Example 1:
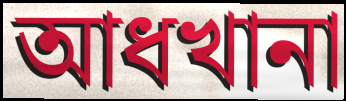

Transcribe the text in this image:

আধখানা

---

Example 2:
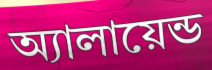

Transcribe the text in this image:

অ্যালায়েন্ড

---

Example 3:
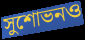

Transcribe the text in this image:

সুশোভনও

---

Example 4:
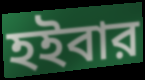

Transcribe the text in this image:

হইবার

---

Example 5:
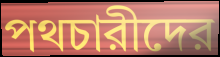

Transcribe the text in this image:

পথচারীদের